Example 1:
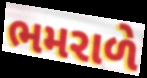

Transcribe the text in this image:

ભમરાળે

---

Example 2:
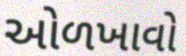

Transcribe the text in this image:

ઓળખાવો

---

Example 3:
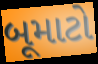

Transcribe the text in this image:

બૂમાટો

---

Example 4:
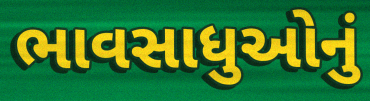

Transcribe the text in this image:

ભાવસાધુઓનું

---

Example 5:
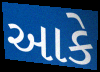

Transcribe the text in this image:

આકે